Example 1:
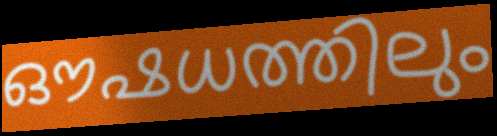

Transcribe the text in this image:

ഔഷധത്തിലും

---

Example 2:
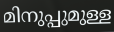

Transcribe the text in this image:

മിനുപ്പുമുള്ള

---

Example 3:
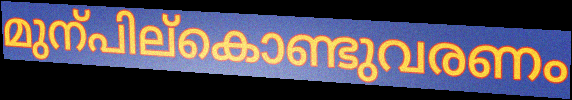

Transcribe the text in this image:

മുന്പില്കൊണ്ടുവരണം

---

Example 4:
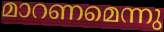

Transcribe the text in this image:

മാറണമെന്നു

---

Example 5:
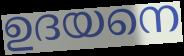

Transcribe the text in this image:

ഉദയനെ